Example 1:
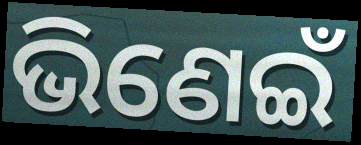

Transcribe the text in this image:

ଭିଣେଇଁ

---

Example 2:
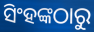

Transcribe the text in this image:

ସିଂହଙ୍କଠାରୁ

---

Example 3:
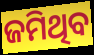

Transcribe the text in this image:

ଜମିଥିବ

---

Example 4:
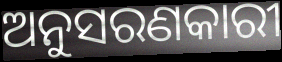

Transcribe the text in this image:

ଅନୁସରଣକାରୀ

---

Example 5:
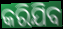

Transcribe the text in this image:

କରିଯିବ